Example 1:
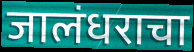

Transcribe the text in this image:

जालंधराचा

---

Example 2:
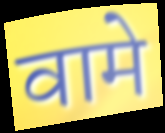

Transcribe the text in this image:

वामे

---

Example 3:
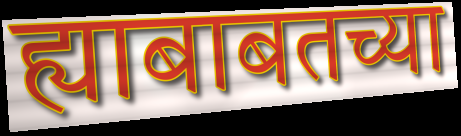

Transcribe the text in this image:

ह्याबाबतच्या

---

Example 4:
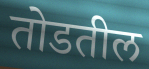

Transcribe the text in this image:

तोडतील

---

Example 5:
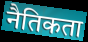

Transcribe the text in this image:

नैतिकता